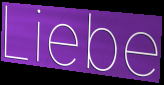
Liebe